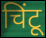
चिंटू